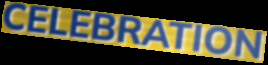
CELEBRATION